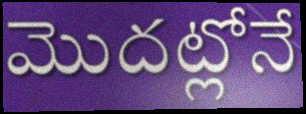
మొదట్లోనే